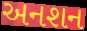
અનશન